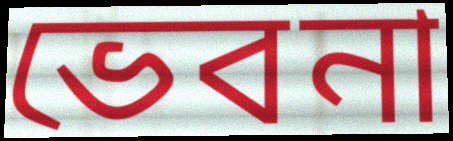
ভেবনা